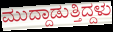
ಮುದ್ದಾಡುತ್ತಿದ್ದಳು